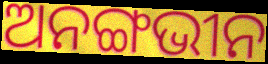
ଅନଙ୍ଗଭୀନ